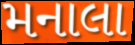
મનાલા